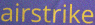
airstrike